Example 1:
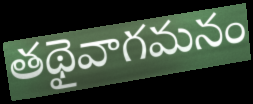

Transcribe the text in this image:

తథైవాగమనం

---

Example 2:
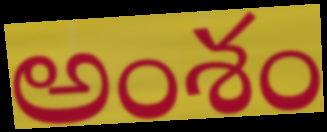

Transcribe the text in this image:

అంశం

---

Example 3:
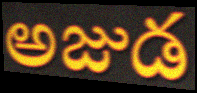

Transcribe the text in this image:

అజుడ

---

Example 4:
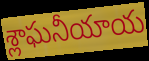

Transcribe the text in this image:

శ్లాఘనీయాయ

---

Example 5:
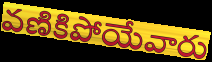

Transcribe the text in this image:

వణికిపోయేవారు